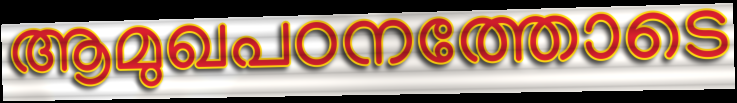
ആമുഖപഠനത്തോടെ